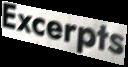
Excerpts